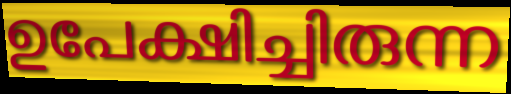
ഉപേക്ഷിച്ചിരുന്ന